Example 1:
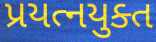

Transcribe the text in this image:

પ્રયત્નયુક્ત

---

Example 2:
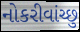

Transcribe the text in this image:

નોકરીવાંચ્છુ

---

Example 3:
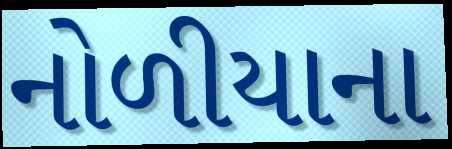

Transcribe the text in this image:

નોળીયાના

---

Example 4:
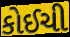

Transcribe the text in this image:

કોઈચી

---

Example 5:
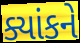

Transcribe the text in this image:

ક્યાંકને